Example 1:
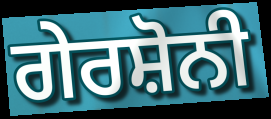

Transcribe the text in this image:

ਗੇਰਸ਼ੋਨੀ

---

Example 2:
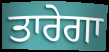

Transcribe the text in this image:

ਤਾਰੇਗਾ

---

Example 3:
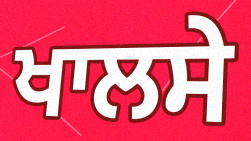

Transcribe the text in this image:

ਖਾਲਸੇ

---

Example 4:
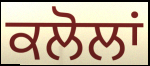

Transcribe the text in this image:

ਕਲੋਲਾਂ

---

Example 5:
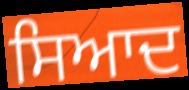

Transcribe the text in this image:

ਸਿਆਦ